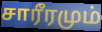
சாரீரமும்